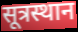
सूत्रस्थान